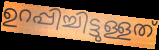
ഉറപ്പിച്ചിട്ടുള്ളത്